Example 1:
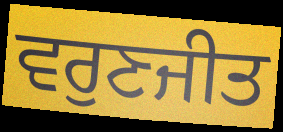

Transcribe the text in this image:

ਵਰੁਣਜੀਤ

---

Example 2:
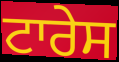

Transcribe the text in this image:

ਟਾਰੇਸ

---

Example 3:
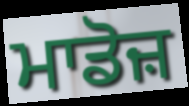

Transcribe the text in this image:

ਮਾਡੋਜ਼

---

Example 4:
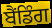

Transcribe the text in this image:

ਬੈਂਡਿੰਗ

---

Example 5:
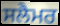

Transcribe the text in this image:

ਸਲੈਮਰ